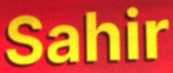
Sahir